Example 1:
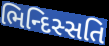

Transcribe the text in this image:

ભિન્દિસ્સતિ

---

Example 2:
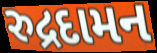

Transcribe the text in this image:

રુદ્રદામન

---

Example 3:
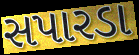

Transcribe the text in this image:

સપારડા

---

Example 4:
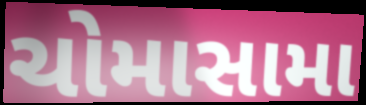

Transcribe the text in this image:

ચોમાસામા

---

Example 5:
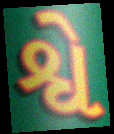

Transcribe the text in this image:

શ્વે